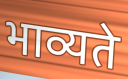
भाव्यते